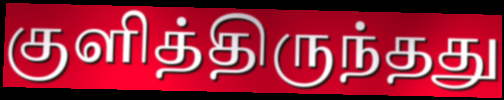
குளித்திருந்தது